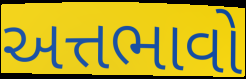
અત્તભાવો